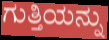
ಗುತ್ತಿಯನ್ನು